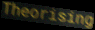
Theorising